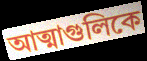
আত্মাগুলিকে